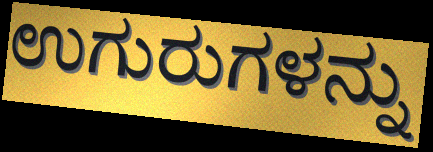
ಉಗುರುಗಳನ್ನು